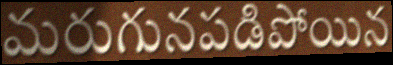
మరుగునపడిపోయిన